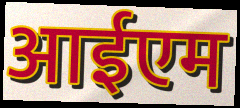
आईएम